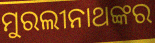
ମୁରଲୀନାଥଙ୍କର